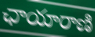
ఛాయారాణి